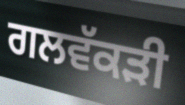
ਗਲਵੱਕਡ਼ੀ